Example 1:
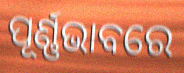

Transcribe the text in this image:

ପୂର୍ଣ୍ଣଭାବରେ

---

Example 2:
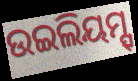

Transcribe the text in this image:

ଉଇଲିୟମ୍ସ୍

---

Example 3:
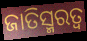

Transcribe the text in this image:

ଜାତିସ୍ମରତ୍ୱ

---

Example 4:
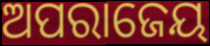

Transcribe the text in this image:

ଅପରାଜେୟ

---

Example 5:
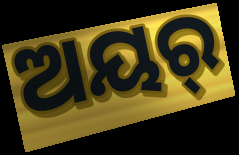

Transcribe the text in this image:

ଅୟର୍